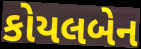
કોયલબેન